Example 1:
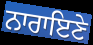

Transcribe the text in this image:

ਨਾਰਾਇਣੇ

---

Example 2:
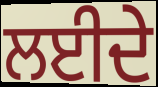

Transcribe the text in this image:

ਲਈਦੇ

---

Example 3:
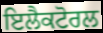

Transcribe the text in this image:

ਇਲੈਕਟੋਰਲ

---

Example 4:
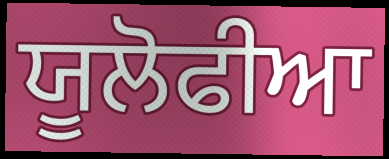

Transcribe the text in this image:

ਯੂਲੋਫੀਆ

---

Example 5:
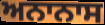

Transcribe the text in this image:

ਅਨਾਨਾਸ